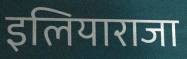
इलियाराजा